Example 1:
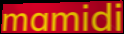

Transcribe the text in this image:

mamidi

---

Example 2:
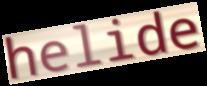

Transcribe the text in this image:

helide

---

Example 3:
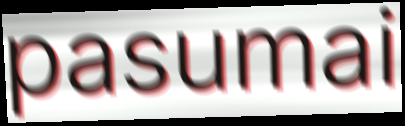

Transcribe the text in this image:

pasumai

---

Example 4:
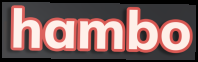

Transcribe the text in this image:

hambo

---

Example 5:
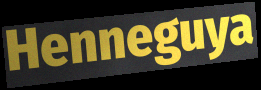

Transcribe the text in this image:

Henneguya